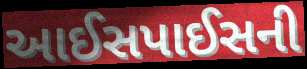
આઈસપાઈસની